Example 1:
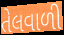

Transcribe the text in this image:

તેલવાળી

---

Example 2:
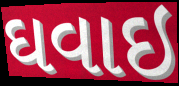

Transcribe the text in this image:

ઘવાઇ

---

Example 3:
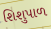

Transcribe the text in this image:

શિશુપાળ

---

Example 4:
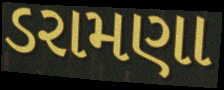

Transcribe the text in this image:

ડરામણા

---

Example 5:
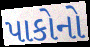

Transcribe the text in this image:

પાકોનો